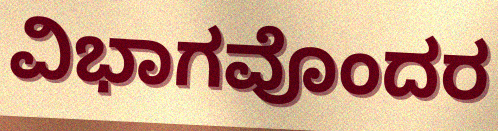
ವಿಭಾಗವೊಂದರ